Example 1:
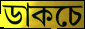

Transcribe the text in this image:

ডাকচে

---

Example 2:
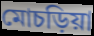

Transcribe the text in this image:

মোচড়িয়া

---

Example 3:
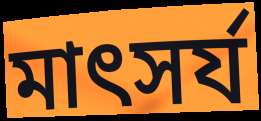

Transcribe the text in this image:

মাৎসর্য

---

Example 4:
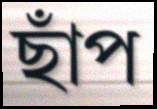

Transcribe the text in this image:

ছাঁপ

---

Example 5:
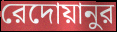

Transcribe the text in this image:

রেদোয়ানুর